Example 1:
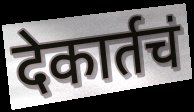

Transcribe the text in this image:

देकार्तचं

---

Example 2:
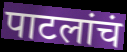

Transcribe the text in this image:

पाटलांचं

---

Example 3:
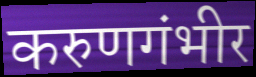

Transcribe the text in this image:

करुणगंभीर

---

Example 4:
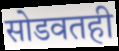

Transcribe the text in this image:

सोडवतही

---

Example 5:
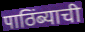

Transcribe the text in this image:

पाठिंब्याची